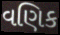
વણિક